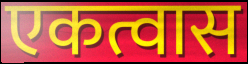
एकत्वास